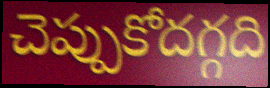
చెప్పుకోదగ్గది